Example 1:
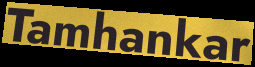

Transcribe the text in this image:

Tamhankar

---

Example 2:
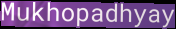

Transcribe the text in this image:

Mukhopadhyay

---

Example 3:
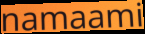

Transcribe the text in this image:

namaami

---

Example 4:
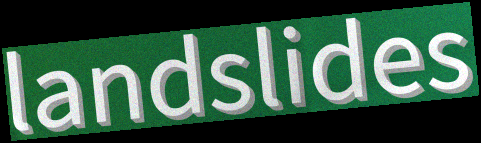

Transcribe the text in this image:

landslides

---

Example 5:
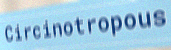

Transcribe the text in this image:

Circinotropous